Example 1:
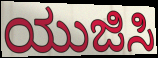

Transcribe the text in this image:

ಯುಜಿಸಿ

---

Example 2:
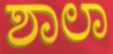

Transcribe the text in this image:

ಶಾಲಾ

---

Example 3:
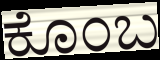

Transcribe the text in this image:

ಕೊಂಬ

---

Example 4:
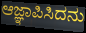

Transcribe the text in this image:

ಆಜ್ಞಾಪಿಸಿದನು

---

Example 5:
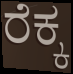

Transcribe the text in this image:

ರೆಕ್ಕ